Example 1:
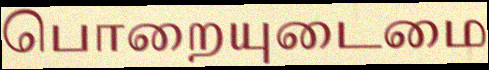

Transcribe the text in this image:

பொறையுடைமை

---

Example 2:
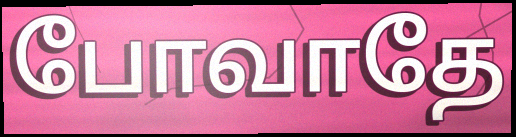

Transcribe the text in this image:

போவாதே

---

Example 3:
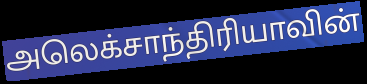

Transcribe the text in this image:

அலெக்சாந்திரியாவின்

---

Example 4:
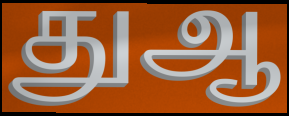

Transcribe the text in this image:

துஆ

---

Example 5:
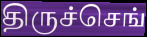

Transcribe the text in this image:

திருச்செங்